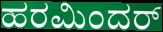
ಹರಮಿಂದರ್